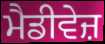
ਮੈਡੀਵੇਜ਼